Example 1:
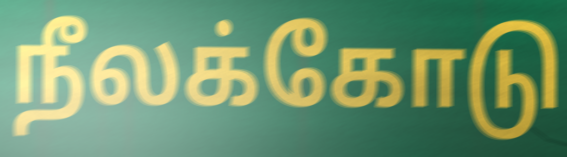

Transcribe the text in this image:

நீலக்கோடு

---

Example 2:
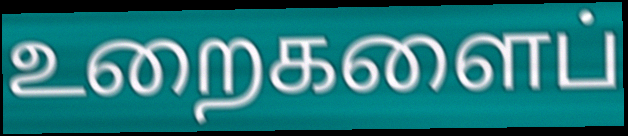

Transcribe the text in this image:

உறைகளைப்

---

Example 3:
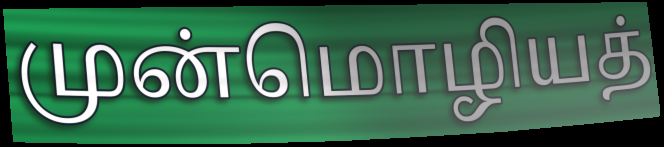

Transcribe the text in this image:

முன்மொழியத்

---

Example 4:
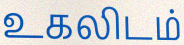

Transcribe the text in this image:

உகலிடம்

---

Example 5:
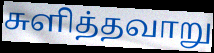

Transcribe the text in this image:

சுளித்தவாறு